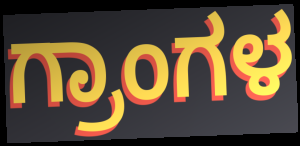
ಗ್ರಾಂಗಳ